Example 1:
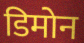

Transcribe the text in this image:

डिमोन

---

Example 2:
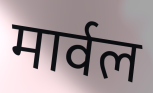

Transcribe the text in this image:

मार्वल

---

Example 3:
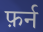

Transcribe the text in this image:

फ़र्न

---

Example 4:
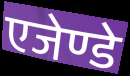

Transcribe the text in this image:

एजेण्डे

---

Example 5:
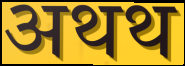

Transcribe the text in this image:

अथथ